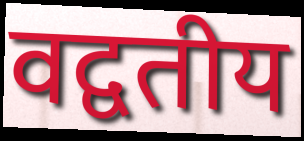
वद्वतीय